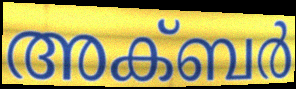
അക്ബർ